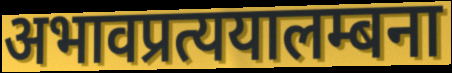
अभावप्रत्ययालम्बना